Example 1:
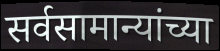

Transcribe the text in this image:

सर्वसामान्यांच्या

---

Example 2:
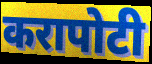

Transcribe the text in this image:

करापोटी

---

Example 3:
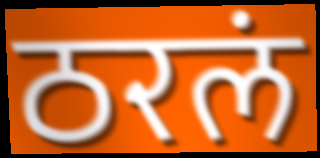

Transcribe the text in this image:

ठरलं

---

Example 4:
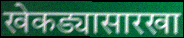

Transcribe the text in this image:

खेकड्यासारखा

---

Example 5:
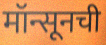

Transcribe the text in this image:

मॉन्सूनची